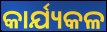
କାର୍ଯ୍ୟକଳ